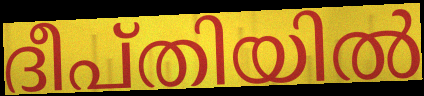
ദീപ്തിയിൽ